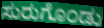
ಸುರುಗೊಂಡು